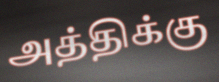
அத்திக்கு